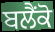
ਬਲੈਂਕੋ